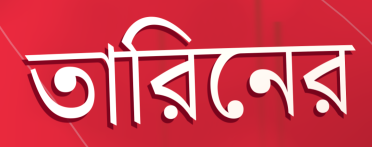
তারিনের